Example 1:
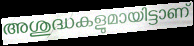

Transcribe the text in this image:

അശുദ്ധകളുമായിട്ടാണ്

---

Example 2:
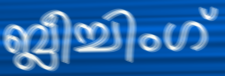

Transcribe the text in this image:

ബ്ലീച്ചിംഗ്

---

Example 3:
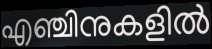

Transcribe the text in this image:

എഞ്ചിനുകളിൽ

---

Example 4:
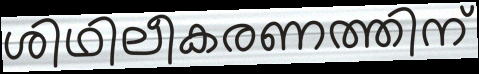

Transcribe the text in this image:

ശിഥിലീകരണത്തിന്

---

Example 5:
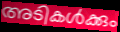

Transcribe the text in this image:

അടികൾക്കും